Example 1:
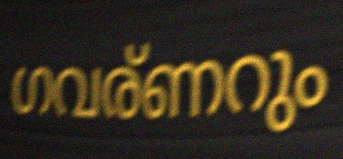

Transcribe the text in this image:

ഗവര്ണറും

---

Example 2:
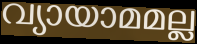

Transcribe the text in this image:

വ്യായാമമല്ല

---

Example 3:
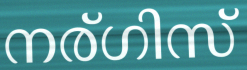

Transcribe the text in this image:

നര്ഗിസ്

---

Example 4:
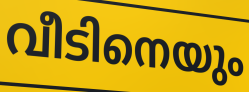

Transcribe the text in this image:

വീടിനെയും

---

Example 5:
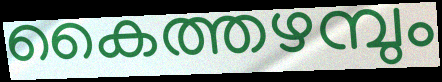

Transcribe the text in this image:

കൈത്തഴമ്പും